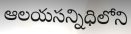
ఆలయసన్నిధిలోని